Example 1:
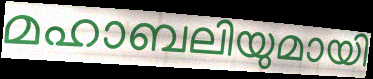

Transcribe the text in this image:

മഹാബലിയുമായി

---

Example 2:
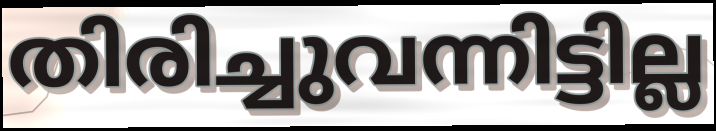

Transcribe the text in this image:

തിരിച്ചുവന്നിട്ടില്ല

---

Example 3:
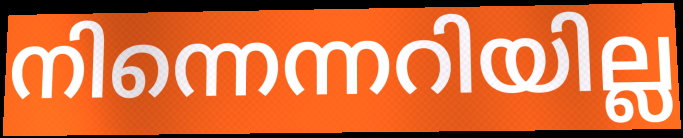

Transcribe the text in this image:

നിന്നെന്നറിയില്ല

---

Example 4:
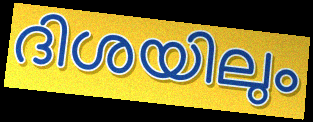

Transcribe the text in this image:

ദിശയിലും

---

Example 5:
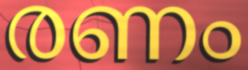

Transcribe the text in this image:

രണം